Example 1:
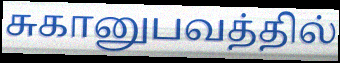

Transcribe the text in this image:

சுகானுபவத்தில்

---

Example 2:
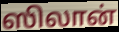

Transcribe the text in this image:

ஸிலான்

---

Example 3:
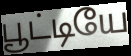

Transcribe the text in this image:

பூட்டியே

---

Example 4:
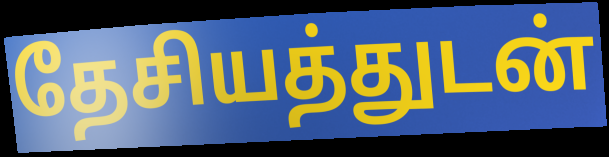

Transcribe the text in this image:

தேசியத்துடன்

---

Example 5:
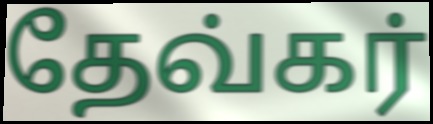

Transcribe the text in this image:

தேவ்கர்